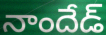
నాందేడ్